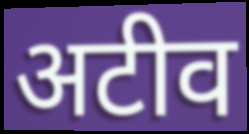
अटीव